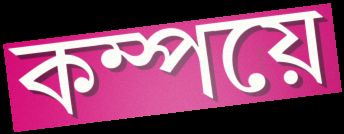
কম্পয়ে